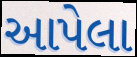
આપેલા